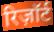
रिज़ॉर्ट